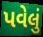
પવેલું